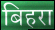
बिहरा